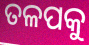
ତଳପକୁ